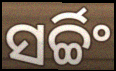
ସର୍ଚ୍ଚିଂ